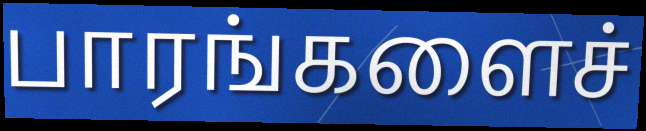
பாரங்களைச்